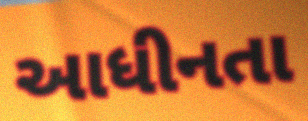
આધીનતા